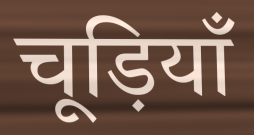
चूड़ियाँ